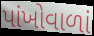
પાંખોવાળાં